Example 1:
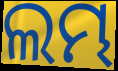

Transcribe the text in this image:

ଲମ୍ଭ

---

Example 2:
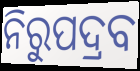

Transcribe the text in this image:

ନିରୁପଦ୍ରବ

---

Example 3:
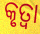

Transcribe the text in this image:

କୃତ୍ଵା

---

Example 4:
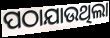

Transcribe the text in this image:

ପଠାଯାଉଥିଲା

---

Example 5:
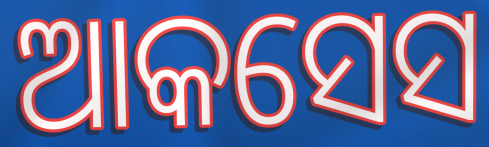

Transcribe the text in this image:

ଆକସେସ